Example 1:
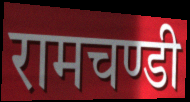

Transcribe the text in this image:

रामचण्डी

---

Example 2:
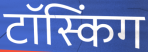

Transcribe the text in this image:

टॉस्किंग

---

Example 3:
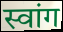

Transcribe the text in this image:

स्‍वांग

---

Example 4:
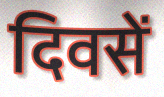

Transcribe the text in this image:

दिवसें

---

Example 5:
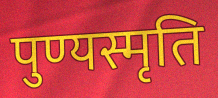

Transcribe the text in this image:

पुण्यस्मृति